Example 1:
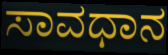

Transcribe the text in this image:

ಸಾವಧಾನ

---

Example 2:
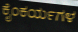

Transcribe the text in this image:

ಕೈಂಕರ್ಯಗಳ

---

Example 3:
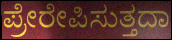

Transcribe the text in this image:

ಪ್ರೇರೇಪಿಸುತ್ತದಾ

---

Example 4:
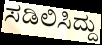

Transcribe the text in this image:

ಸಡಿಲಿಸಿದ್ದು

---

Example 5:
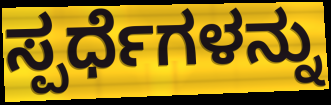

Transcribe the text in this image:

ಸ್ಪರ್ಧೆಗಳನ್ನು